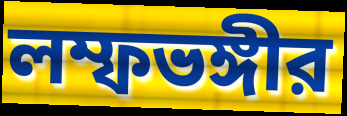
লম্ফভঙ্গীর